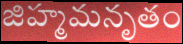
జిహ్మమనృతం